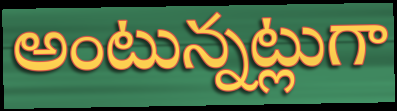
అంటున్నట్లుగా